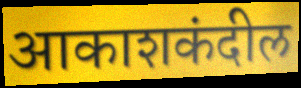
आकाशकंदील